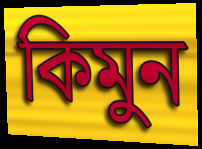
কিমুন